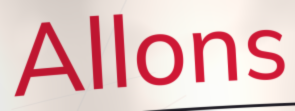
Allons